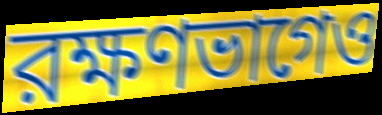
রক্ষণভাগেও